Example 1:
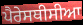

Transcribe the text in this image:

ਪੈਰੇਸਥੀਸੀਆ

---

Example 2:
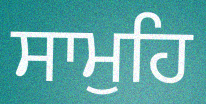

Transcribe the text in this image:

ਸਾਮੁਹਿ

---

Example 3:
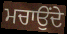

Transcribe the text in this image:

ਮਚਾਉਂਦੇ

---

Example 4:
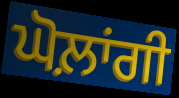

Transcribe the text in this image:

ਘੋਲ਼ਾਂਗੀ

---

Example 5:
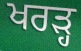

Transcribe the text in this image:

ਖਰੜ੍ਹ